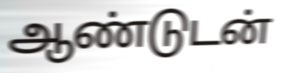
ஆண்டுடன்